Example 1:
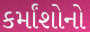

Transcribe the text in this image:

કર્માંશોનો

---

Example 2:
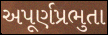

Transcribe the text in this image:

અપૂર્ણપ્રભુતા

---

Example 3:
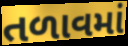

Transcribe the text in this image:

તળાવમાં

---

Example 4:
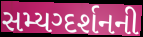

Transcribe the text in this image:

સમ્યગ્દર્શનની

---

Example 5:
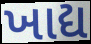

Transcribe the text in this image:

ખાદ્ય